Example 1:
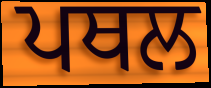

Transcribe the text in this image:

ਪਥਲ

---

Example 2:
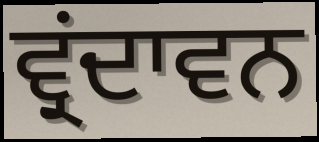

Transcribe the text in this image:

ਵ੍ਰਂਦਾਵਨ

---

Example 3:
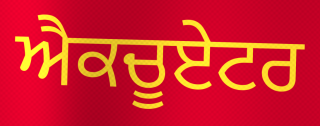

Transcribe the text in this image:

ਐਕਚੂਏਟਰ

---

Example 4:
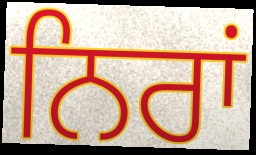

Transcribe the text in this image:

ਨਿਰਾਂ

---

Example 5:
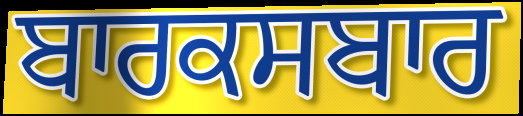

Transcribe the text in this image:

ਬਾਰਕਸਬਾਰ